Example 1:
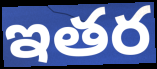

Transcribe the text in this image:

ఇతర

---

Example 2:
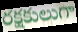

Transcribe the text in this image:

రక్షకులుగా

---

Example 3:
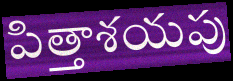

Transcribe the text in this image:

పిత్తాశయపు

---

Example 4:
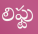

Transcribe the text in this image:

లిఫ్టు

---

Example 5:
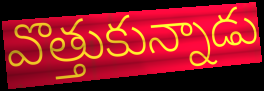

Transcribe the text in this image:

వొత్తుకున్నాడు